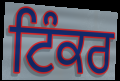
ਟਿੰਕਰ